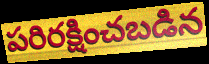
పరిరక్షించబడిన